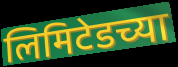
लिमिटेडच्या